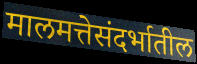
मालमत्तेसंदर्भातील